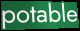
potable